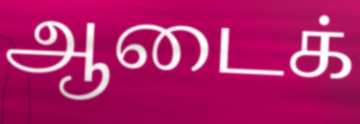
ஆடைக்